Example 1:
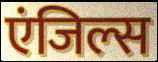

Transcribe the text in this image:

एंजिल्‍स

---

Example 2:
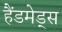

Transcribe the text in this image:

हैंडमेड्स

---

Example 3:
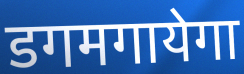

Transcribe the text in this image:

डगमगायेगा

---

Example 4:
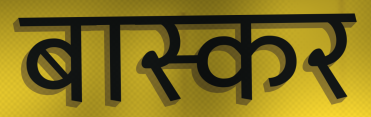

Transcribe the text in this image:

बास्कर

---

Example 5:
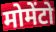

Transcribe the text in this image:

मोमेंटो